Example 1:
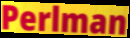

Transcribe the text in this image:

Perlman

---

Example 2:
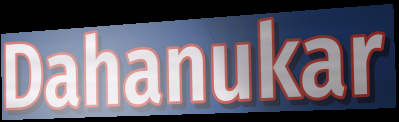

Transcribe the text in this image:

Dahanukar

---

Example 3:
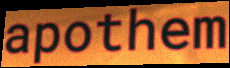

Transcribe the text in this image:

apothem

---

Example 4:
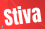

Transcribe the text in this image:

Stiva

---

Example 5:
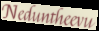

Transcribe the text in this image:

Neduntheevu